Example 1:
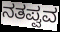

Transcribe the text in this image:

ನತಪ್ವವ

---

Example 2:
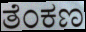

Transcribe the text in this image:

ತೆಂಕಣ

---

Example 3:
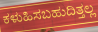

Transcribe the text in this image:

ಕಳುಹಿಸಬಹುದಿತ್ತಲ್ಲ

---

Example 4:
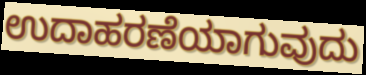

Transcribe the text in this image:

ಉದಾಹರಣೆಯಾಗುವುದು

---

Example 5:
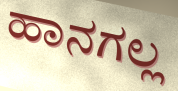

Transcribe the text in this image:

ಹಾನಗಲ್ಲ